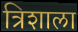
त्रिशाला